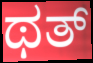
ಥತ್